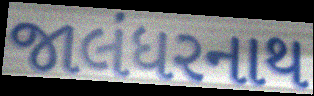
જાલંધરનાથ